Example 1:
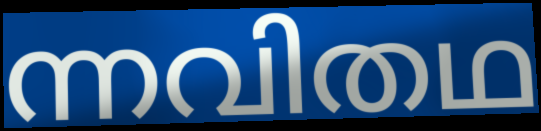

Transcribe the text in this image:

ന്നവിതഥ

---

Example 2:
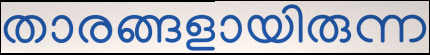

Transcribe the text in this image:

താരങ്ങളായിരുന്ന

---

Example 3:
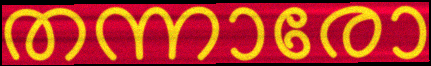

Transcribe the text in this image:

തന്നാരോ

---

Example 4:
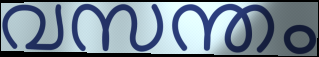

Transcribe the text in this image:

വസന്തം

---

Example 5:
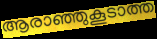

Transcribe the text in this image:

ആരാഞ്ഞുകൂടാത്ത